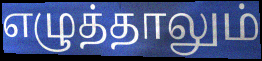
எழுத்தாலும்